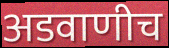
अडवाणीच